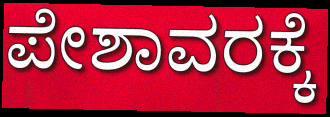
ಪೇಶಾವರಕ್ಕೆ